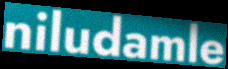
niludamle